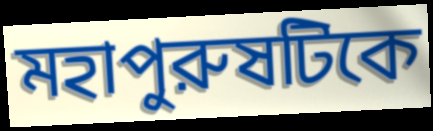
মহাপুরুষটিকে